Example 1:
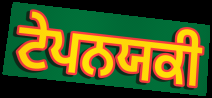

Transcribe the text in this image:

ਟੇਪਨਯਕੀ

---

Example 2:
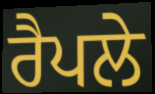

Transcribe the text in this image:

ਰੈਪਲੇ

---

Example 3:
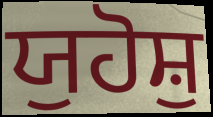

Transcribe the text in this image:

ਯੁਹੋਸ਼ੁ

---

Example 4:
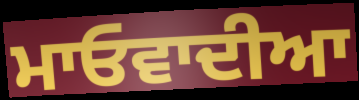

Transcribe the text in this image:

ਮਾਓਵਾਦੀਆ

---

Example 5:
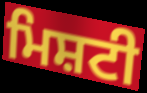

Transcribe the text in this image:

ਮਿਸ਼ਟੀ